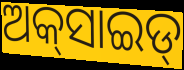
ଅକ୍‌ସାଇଡ୍